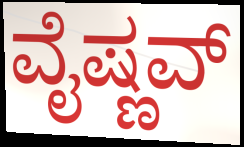
ವೈಷ್ಣವ್